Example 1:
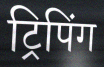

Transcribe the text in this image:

ट्रिपिंग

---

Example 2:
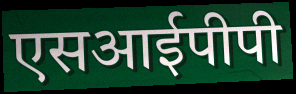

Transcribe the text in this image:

एसआईपीपी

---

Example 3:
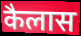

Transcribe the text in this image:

कैलास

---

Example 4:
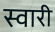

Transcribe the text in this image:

स्वारी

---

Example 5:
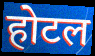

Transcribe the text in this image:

होटल